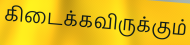
கிடைக்கவிருக்கும்